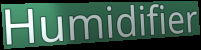
Humidifier